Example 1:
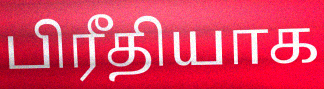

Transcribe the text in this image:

பிரீதியாக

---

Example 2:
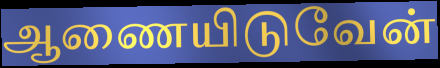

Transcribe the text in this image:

ஆணையிடுவேன்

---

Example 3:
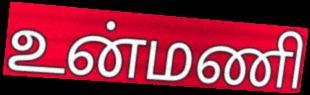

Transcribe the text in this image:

உன்மணி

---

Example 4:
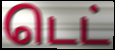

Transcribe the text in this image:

டெட்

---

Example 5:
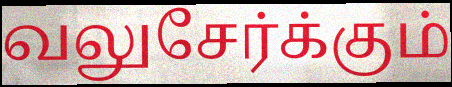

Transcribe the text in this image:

வலுசேர்க்கும்